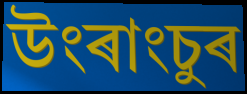
উংৰাংচুৰ